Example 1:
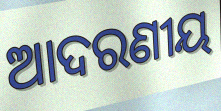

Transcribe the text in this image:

ଆଦରଣୀୟ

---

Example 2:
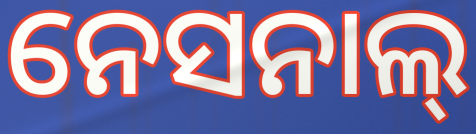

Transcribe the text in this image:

ନେସନାଲ୍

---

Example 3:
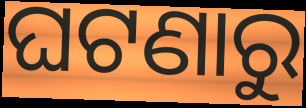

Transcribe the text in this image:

ଘଟଣାରୁ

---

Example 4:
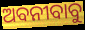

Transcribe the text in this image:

ଅବନୀବାବୁ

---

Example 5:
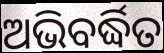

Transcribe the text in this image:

ଅଭିବର୍ଦ୍ଧିତ